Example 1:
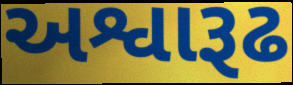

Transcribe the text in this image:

અશ્વારૂઢ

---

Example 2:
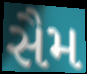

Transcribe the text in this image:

સૈમ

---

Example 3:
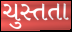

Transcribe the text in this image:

ચુસ્તતા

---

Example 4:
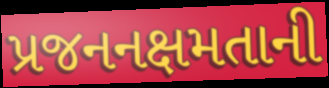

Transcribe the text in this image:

પ્રજનનક્ષમતાની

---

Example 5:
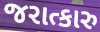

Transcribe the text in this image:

જરાત્કારુ